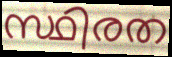
സ്ഥിരത